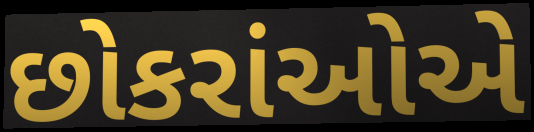
છોકરાંઓએ